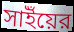
সাইঁয়ের